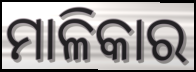
ମାଳିକାର